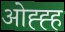
ओह्ह्ह